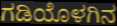
ಗಡಿಯೊಳಗಿನ